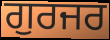
ਗੁਰਜਰ